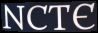
NCTE